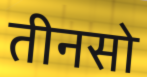
तीनसो